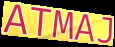
ATMAJ